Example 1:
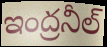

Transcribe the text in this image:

ఇంద్రనీల్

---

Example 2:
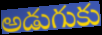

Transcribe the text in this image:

అడుగుకు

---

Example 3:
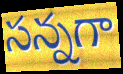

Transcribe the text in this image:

సన్నగా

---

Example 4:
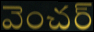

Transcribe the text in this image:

వెంచర్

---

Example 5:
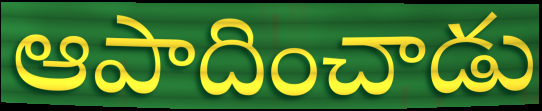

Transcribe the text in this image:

ఆపాదించాడు